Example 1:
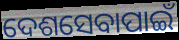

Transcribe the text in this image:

ଦେଶସେବାପାଇଁ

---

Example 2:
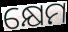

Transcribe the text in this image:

କ୍ଷେମ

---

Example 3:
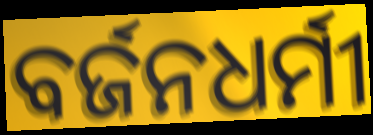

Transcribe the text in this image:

ବର୍ଜନଧର୍ମୀ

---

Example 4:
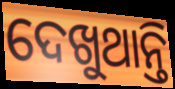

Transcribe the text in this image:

ଦେଖୁଥାନ୍ତି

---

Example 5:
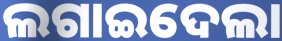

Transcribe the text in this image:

ଲଗାଇଦେଲା